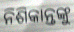
ନିଶିକାନ୍ତଙ୍କୁ